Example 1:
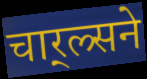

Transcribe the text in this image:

चार्ल्सने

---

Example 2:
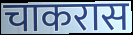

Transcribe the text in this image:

चाकरास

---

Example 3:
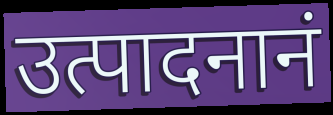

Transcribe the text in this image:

उत्पादनानं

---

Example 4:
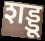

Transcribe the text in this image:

शड्डू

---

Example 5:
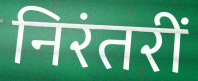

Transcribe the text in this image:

निरंतरीं